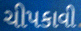
ચીપકાવી